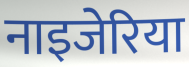
नाइजेरिया